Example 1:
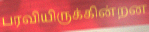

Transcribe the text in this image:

பரவியிருக்கின்றன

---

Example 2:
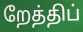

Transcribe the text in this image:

றேத்திப்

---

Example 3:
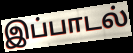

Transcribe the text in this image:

இப்பாடல்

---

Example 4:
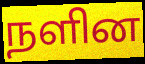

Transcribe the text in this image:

நளின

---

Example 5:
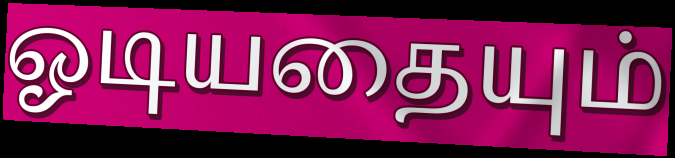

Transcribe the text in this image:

ஓடியதையும்